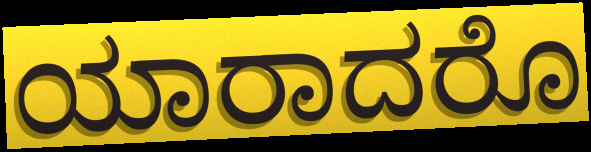
ಯಾರಾದರೊ